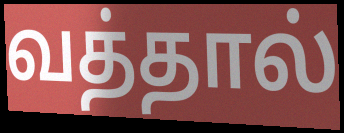
வத்தால்